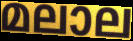
മലാല